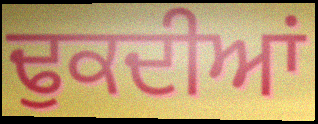
ਢੁਕਦੀਆਂ